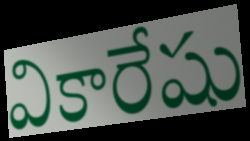
వికారేషు